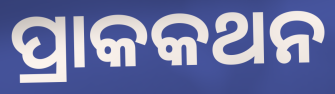
ପ୍ରାକକଥନ